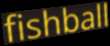
fishball